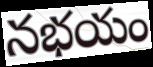
నభయం